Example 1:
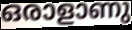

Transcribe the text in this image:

ഒരാളാണു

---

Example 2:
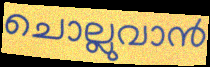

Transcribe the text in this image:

ചൊല്ലുവാൻ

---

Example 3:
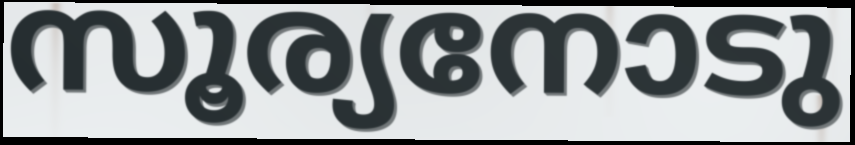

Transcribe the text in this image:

സൂര്യനോടു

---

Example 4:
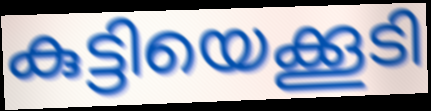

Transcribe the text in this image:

കുട്ടിയെക്കൂടി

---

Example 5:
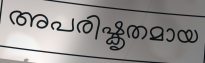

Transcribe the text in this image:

അപരിഷ്കൃതമായ